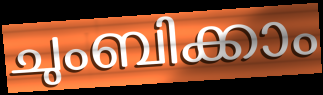
ചുംബിക്കാം